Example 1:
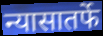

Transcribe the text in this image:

न्यासातर्फे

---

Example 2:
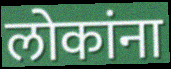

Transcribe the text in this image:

लोकांना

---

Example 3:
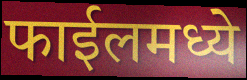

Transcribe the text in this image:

फाईलमध्ये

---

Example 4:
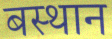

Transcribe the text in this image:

बस्थान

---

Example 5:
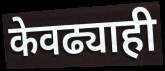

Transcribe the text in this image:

केवढ्याही